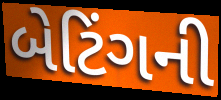
બેટિંગની